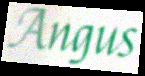
Angus